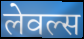
लेवल्स